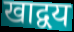
खाद्वय